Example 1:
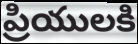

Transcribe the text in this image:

ప్రియులకి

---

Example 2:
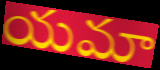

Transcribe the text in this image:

యమా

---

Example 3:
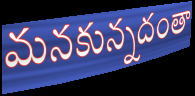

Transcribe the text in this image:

మనకున్నదంతా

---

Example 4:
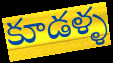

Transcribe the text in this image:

కూడళ్ళ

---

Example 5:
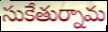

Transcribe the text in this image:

సుకేతుర్నామ